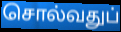
சொல்வதுப்